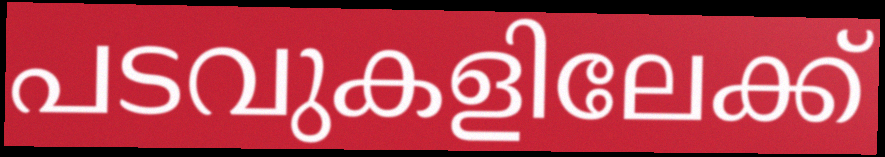
പടവുകളിലേക്ക്